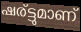
ഷര്ട്ടുമാണ്